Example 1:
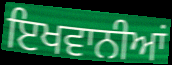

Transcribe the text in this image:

ਇਖਵਾਨੀਆਂ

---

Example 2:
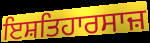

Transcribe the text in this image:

ਇਸ਼ਤਿਹਾਰਸਾਜ਼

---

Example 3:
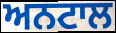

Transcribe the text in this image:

ਅਨਟਾਲ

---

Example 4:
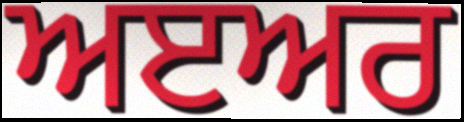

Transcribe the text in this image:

ਅੲਅਰ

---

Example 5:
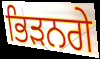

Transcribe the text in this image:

ਭਿੜਨਗੇ